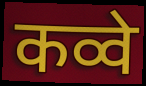
कव्वे